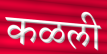
कळली